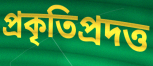
প্রকৃতিপ্রদত্ত